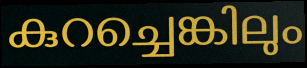
കുറച്ചെങ്കിലും